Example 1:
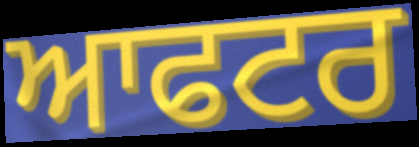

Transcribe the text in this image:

ਆਫਟਰ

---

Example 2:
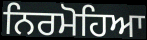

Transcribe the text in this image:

ਨਿਰਮੋਹਿਆ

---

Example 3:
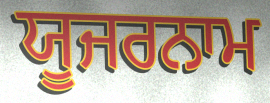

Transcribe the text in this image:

ਯੂਜਰਨਾਮ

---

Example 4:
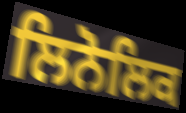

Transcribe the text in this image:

ਲਿਨੋਲਿਕ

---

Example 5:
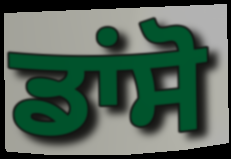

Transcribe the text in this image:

ਡਾਂਸੋ